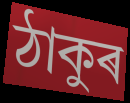
ঠাকুৰ